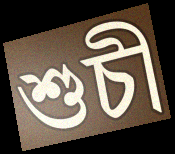
শুচী